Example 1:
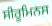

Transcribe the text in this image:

ਸੀਰੂਮਿਨਸ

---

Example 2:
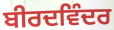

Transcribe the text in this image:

ਬੀਰਦਵਿੰਦਰ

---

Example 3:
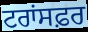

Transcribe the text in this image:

ਟਰਾਂਸਫ਼ਰ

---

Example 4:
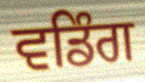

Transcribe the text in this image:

ਵਡਿੰਗ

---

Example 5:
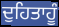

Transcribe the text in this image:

ਦੁਹਿਤਾਹੂੰ